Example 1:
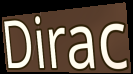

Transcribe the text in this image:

Dirac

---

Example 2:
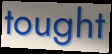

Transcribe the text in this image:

tought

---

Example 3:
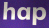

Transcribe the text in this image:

hap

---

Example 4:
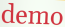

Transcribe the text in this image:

demo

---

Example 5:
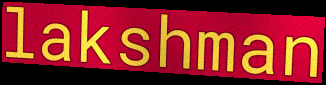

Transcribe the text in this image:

lakshman